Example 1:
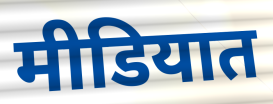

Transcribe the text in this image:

मीडियात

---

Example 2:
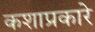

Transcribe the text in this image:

कशाप्रकारे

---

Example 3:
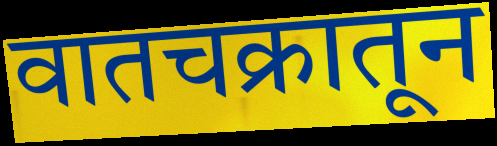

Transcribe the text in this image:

वातचक्रातून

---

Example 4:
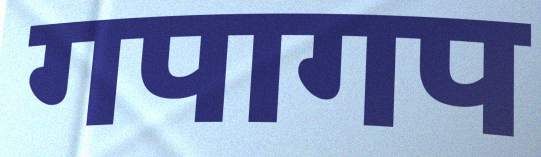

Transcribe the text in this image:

गपागप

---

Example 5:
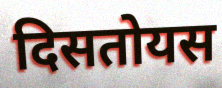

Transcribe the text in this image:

दिसतोयस